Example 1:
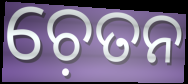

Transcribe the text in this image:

ଚ଼େତନ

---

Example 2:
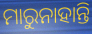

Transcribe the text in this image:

ମାରୁନାହାନ୍ତି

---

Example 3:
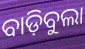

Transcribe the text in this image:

ବାଡ଼ିବୁଲା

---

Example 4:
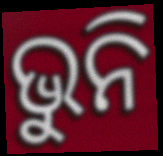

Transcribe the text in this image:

ଭୁନି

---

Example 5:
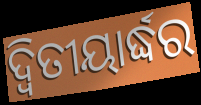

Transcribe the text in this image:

ଦ୍ୱିତୀୟାର୍ଦ୍ଧର